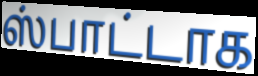
ஸ்பாட்டாக